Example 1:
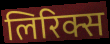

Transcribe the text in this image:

लिरिक्स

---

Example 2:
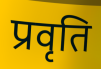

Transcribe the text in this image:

प्रवृति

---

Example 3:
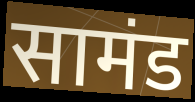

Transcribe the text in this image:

सामंड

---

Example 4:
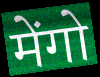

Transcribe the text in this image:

मेंगो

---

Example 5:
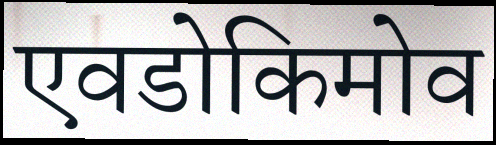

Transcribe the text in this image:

एवडोकिमोव